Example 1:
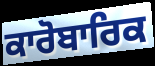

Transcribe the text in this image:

ਕਾਰੋਬਾਰਿਕ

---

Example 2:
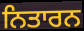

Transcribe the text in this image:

ਨਿਤਾਰਨ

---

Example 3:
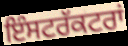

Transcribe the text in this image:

ਇੰਸਟਰੱਕਟਰਾਂ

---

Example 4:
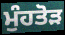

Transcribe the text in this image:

ਮੁੰਹਤੋੜ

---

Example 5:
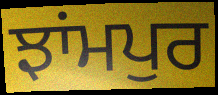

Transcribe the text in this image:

ਝਾਂਮਪੁਰ